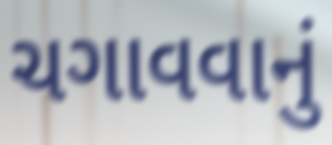
ચગાવવાનું